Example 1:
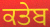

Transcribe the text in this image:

ਕਤੇਬ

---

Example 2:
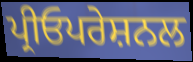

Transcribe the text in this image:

ਪ੍ਰੀਓਪਰੇਸ਼ਨਲ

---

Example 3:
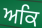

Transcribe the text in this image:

ਅਕਿ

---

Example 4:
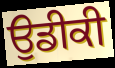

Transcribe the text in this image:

ਉਡੀਕੀ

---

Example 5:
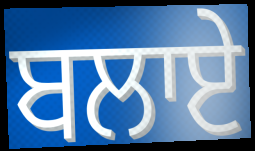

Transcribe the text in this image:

ਬਲਾਏ